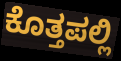
ಕೊತ್ತಪಲ್ಲಿ